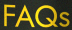
FAQs